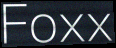
Foxx